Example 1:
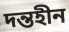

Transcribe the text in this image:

দন্তহীন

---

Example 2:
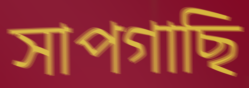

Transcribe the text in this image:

সাপগাছি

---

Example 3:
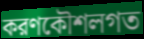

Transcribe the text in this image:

করণকৌশলগত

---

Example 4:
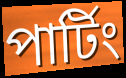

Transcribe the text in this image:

পার্টিং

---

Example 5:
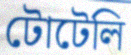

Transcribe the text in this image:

টোটেলি